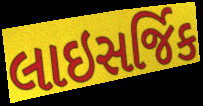
લાઇસર્જિક